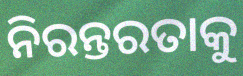
ନିରନ୍ତରତାକୁ